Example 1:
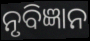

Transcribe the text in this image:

ନୃବିଜ୍ଞାନ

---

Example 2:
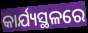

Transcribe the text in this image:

କାର୍ଯ୍ୟସ୍ଥଳରେ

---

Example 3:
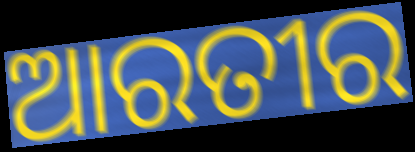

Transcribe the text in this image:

ଆରତୀର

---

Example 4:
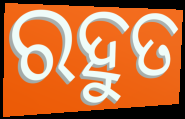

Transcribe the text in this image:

ରହୁତ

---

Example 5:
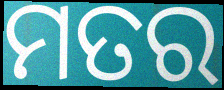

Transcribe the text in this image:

ମତର